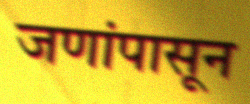
जणांपासून